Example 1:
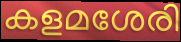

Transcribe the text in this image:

കളമശേരി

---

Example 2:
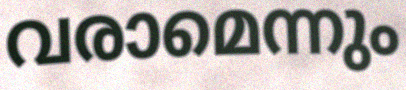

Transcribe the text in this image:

വരാമെന്നും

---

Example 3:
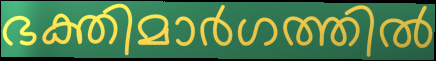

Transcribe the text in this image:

ഭക്തിമാർഗത്തിൽ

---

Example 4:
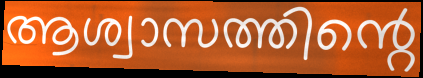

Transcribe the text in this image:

ആശ്വാസത്തിന്റെ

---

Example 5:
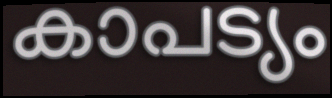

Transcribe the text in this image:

കാപട്യം